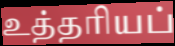
உத்தரியப்